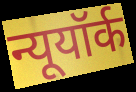
न्यूयॉर्क